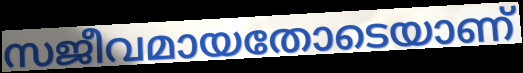
സജീവമായതോടെയാണ്